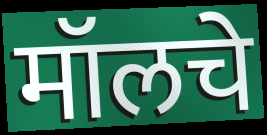
मॉलचे